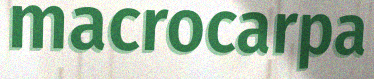
macrocarpa